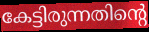
കേട്ടിരുന്നതിന്റെ